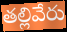
తల్లివేరు